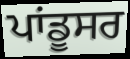
ਪਾਂਡੂਸਰ